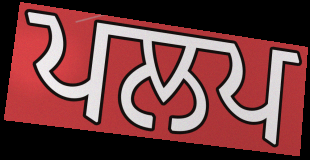
ਪਲਪ